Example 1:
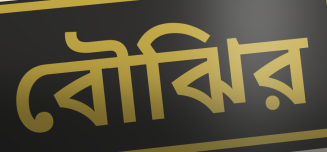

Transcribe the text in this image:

বৌঝির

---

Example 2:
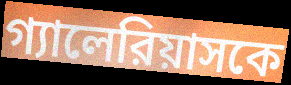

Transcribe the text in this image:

গ্যালেরিয়াসকে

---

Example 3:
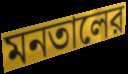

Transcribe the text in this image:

মনতালের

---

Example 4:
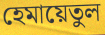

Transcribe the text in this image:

হেমায়েতুল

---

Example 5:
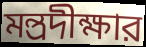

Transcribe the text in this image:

মন্ত্রদীক্ষার